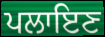
ਪਲਾਇਣ